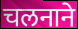
चलनाने